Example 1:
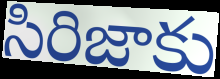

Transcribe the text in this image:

సిరిజాకు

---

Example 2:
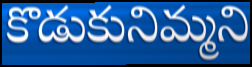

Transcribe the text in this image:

కొడుకునిమ్మని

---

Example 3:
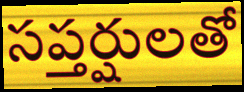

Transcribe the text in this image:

సప్తర్షులతో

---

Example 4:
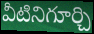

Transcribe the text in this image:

వీటినిగూర్చి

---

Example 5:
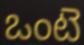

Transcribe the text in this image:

ఒంటె